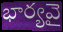
భార్యవై